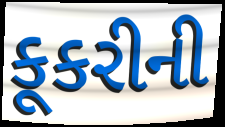
કૂકરીની